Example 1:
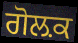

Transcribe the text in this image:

ਗੋਲ਼ਕ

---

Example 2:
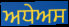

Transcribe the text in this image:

ਅਧੇਅਸ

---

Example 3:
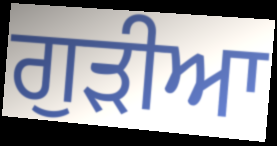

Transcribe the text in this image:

ਗੁਡ਼ੀਆ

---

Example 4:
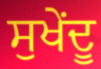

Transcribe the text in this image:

ਸੁਖੇਂਦੂ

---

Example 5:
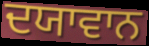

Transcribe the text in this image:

ਦਯਾਵਾਨ